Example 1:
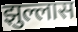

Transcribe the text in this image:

झुल्लास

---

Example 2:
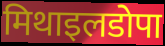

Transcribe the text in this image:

मिथाइलडोपा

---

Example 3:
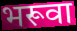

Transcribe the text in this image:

भरूवा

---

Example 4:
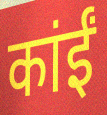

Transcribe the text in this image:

कांईं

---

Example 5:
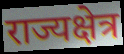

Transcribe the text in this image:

राज्यक्षेत्र